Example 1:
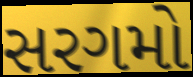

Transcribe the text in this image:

સરગમો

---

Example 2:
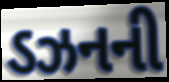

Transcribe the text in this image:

ડઝનની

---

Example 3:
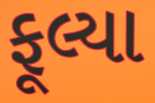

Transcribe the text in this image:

ફૂલ્યા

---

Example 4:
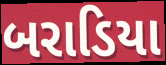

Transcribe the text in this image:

બરાડિયા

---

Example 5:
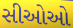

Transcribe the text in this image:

સીઓઓ